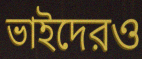
ভাইদেরও